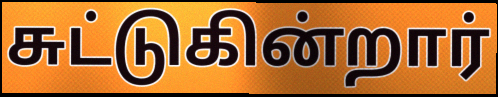
சுட்டுகின்றார்